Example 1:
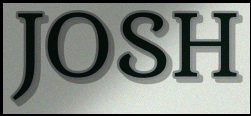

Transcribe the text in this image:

JOSH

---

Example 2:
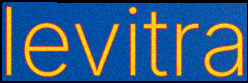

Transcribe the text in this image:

levitra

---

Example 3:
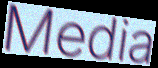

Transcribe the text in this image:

Media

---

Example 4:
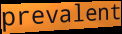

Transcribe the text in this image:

prevalent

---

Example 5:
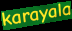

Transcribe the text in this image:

karayala